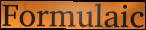
Formulaic